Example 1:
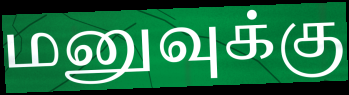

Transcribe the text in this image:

மனுவுக்கு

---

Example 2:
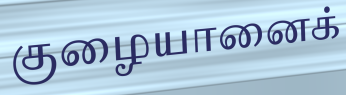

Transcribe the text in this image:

குழையானைக்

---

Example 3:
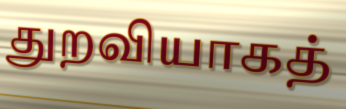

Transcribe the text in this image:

துறவியாகத்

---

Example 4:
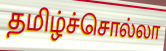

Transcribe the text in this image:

தமிழ்ச்சொல்லா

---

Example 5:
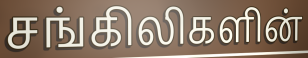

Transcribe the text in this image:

சங்கிலிகளின்